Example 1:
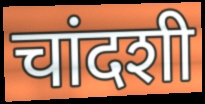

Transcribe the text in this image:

चांदशी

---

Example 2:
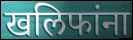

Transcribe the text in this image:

खलिफांना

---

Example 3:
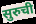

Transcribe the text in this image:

सुरुची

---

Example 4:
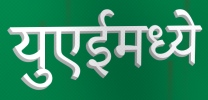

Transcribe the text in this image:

युएईमध्ये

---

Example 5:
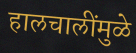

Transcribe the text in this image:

हालचालींमुळे